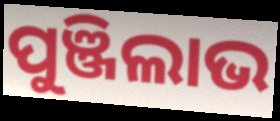
ପୁଞ୍ଜିଲାଭ